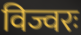
विज्वरः